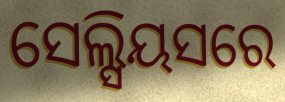
ସେଲ୍ସିୟସରେ